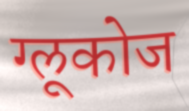
ग्लूकोज